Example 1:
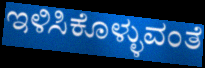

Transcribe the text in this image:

ಇಳಿಸಿಕೊಳ್ಳುವಂತೆ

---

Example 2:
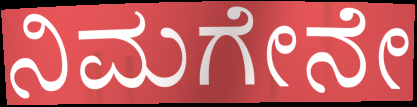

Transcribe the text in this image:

ನಿಮಗೇನೇ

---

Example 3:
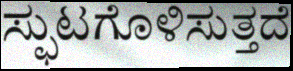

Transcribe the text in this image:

ಸ್ಫುಟಗೊಳಿಸುತ್ತದೆ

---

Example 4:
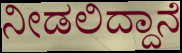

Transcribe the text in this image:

ನೀಡಲಿದ್ದಾನೆ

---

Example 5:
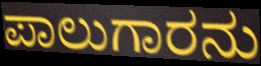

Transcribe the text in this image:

ಪಾಲುಗಾರನು